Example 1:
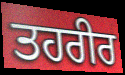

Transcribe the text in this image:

ਤਹਰੀਰ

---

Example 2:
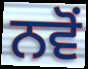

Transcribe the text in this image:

ਨਵੋਂ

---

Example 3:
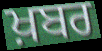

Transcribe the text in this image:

ਖ਼ਬਰ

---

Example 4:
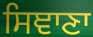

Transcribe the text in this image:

ਸਿਞਾਣਾ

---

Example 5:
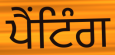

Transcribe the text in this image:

ਪੈਂਟਿੰਗ